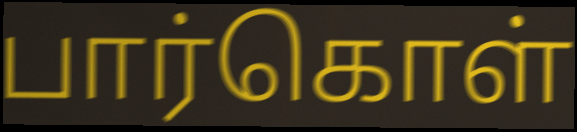
பார்கொள்